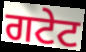
ਗਟੇਟ